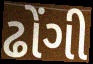
ઢોંગી